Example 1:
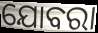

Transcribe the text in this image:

ଯୋବରା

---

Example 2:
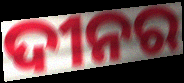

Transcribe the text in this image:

ଦୀନର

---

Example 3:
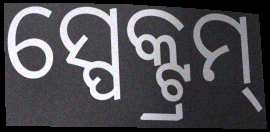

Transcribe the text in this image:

ସ୍ପେକ୍ଟ୍ରମ୍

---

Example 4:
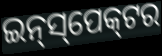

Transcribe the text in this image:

ଇନ୍‌ସ୍‌ପେକ୍‌ଟର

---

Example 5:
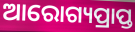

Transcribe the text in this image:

ଆରୋଗ୍ୟପ୍ରାପ୍ତ